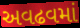
અવઢવમાં